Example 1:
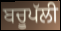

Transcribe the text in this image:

ਬਚੂਪੱਲੀ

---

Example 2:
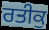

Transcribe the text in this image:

ਰਤੀਕੁ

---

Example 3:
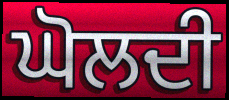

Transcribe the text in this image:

ਘੋਲਦੀ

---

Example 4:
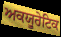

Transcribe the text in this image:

ਅਕਯੂਰੇਟਿਕ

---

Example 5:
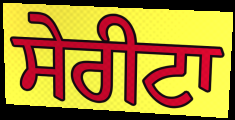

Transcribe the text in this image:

ਸੇਰੀਟਾ